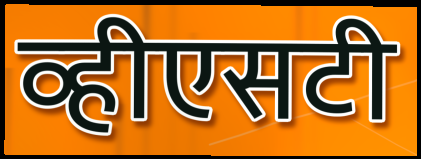
व्हीएसटी